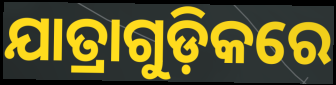
ଯାତ୍ରାଗୁଡ଼ିକରେ